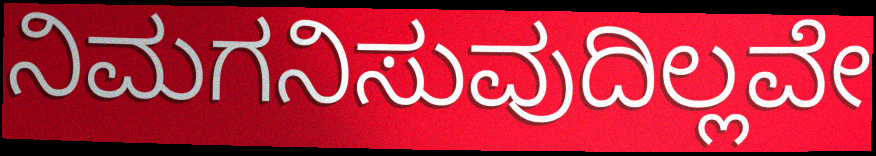
ನಿಮಗನಿಸುವುದಿಲ್ಲವೇ